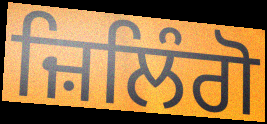
ਜ਼ਿਲਿੰਗੋ